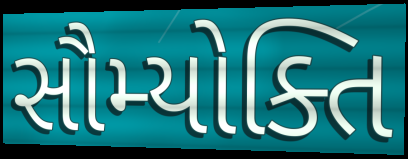
સૌમ્યોક્તિ